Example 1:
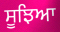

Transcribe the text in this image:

ਸੂਝਿਆ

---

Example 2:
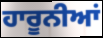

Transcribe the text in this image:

ਹਾਰੂਨੀਆਂ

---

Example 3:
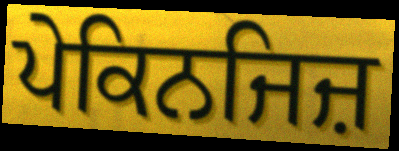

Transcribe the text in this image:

ਪੇਕਿਨਜਿਜ਼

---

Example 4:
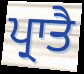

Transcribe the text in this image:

ਪ੍ਰਾਤੈ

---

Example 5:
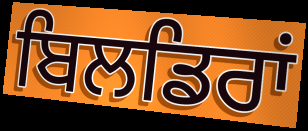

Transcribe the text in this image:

ਬਿਲਡਿਰਾਂ